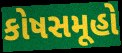
કોષસમૂહો